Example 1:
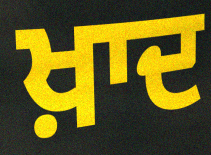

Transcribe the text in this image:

ਖ਼ਾਦ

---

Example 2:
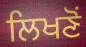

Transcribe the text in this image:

ਲਿਖਣੋਂ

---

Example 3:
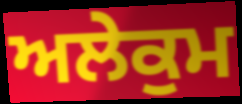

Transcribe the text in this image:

ਅਲੇਕੁਮ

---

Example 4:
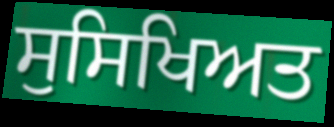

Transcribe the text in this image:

ਸੁਸਿਖਿਅਤ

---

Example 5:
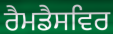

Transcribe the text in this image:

ਰੈਮਡੈਸਵਿਰ